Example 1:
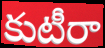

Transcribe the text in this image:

కుటీరా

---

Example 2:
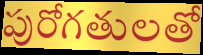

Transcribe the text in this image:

పురోగతులతో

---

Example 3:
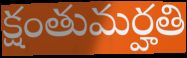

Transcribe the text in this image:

క్షంతుమర్హతి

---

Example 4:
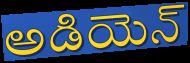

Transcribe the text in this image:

అడియెన్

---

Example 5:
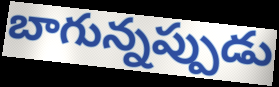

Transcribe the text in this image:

బాగున్నప్పుడు